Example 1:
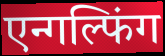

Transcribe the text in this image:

एन्गल्फिंग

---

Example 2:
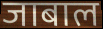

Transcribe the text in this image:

जाबाल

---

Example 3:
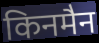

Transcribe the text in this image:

किनमैन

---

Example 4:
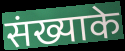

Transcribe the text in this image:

संख्याके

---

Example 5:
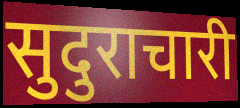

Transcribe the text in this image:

सुदुराचारी